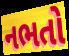
નભતો